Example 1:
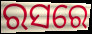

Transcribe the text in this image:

ରସରେ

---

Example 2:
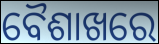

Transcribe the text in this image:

ବୈଶାଖରେ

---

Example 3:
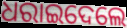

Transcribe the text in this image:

ଧରାଇଦେଲେ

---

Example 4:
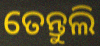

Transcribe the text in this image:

ତେନ୍ତୁଲି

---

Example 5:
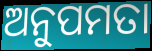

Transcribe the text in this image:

ଅନୁପମତା